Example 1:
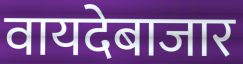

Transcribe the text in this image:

वायदेबाजार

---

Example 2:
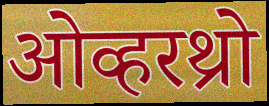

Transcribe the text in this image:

ओव्हरथ्रो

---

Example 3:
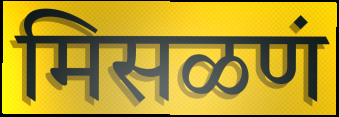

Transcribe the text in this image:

मिसळणं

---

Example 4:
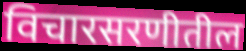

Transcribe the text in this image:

विचारसरणीतील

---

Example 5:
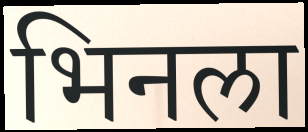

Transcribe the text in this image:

भिनला